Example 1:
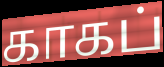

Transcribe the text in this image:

காகப்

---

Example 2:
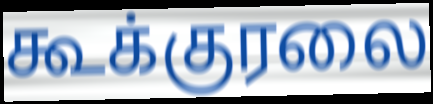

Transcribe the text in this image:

கூக்குரலை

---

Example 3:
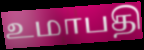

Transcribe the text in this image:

உமாபதி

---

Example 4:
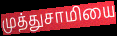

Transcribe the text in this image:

முத்துசாமியை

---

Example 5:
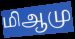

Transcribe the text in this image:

மிஆமு